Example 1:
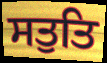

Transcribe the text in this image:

ਸਤੁਤਿ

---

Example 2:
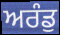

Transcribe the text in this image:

ਅਰੰਡੁ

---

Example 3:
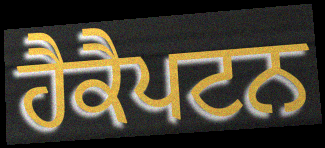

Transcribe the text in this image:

ਹੈਕੈਪਟਨ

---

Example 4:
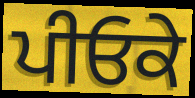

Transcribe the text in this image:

ਪੀਓਕੇ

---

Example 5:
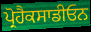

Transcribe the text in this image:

ਪ੍ਰੋਹੈਕਸਾਡੀਓਨ